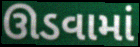
ઊડવામાં